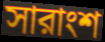
সারাংশ